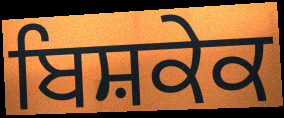
ਬਿਸ਼ਕੇਕ